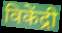
विकेंद्री